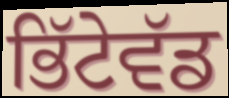
ਭਿੱਟੇਵੱਡ